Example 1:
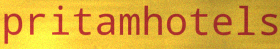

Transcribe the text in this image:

pritamhotels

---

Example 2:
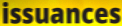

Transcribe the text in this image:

issuances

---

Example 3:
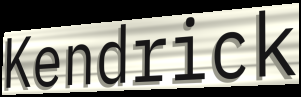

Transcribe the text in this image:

Kendrick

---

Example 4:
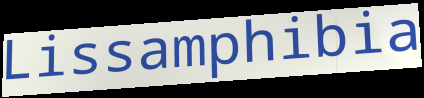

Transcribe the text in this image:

Lissamphibia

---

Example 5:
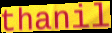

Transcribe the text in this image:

thanil